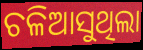
ଚଳିଆସୁଥିଲା